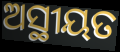
ଅସ୍ଥୀୟତ